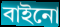
বাইনো